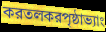
করতলকরপৃষ্ঠাভ্যাং